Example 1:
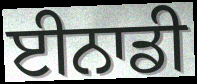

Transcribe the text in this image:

ਈਨਾਡੀ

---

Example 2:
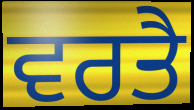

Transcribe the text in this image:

ਵਰਤੈ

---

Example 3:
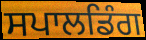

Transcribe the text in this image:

ਸਪਾਲਡਿੰਗ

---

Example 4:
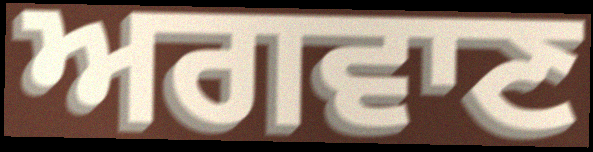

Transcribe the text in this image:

ਅਗਵਾਣ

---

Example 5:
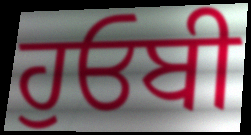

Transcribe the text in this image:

ਹੁਓਬੀ